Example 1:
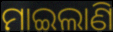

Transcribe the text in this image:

ମାଇଲାଣି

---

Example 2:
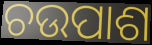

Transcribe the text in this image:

ଚଉପାଶ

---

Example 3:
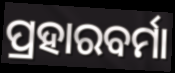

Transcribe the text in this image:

ପ୍ରହାରବର୍ମା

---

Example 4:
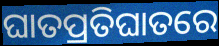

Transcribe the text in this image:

ଘାତପ୍ରତିଘାତରେ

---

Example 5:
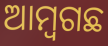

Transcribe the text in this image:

ଆମ୍ୱଗଛ